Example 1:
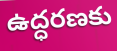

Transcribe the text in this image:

ఉద్ధరణకు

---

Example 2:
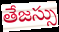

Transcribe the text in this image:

తేజస్సు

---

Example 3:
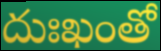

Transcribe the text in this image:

దుఃఖంతో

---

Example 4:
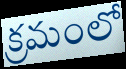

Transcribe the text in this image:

క్రమంలో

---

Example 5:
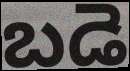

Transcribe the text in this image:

బడె